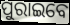
ପୁରାଇବେ